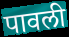
पावली